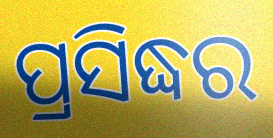
ପ୍ରସିଦ୍ଧର